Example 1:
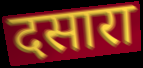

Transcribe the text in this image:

दसारा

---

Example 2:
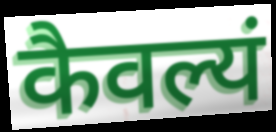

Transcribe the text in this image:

कैवल्यं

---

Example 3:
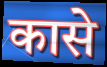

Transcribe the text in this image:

कासे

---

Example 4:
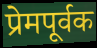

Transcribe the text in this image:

प्रेमपूर्वक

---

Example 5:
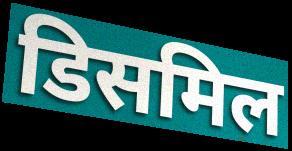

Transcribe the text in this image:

डिसमिल